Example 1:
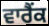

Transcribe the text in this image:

ਵਾਰੈਂਕ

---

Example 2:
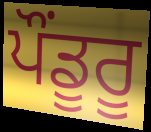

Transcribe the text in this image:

ਪੌਂਡੂਰੂ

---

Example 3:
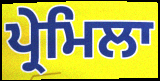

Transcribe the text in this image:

ਪ੍ਰੇਮਿਲਾ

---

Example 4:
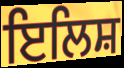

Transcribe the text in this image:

ਇਲਿਸ਼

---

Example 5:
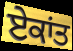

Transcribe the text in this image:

ਏਕਾਂਤ